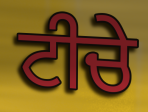
ਟੀਚੇ